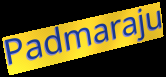
Padmaraju